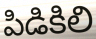
పిడికిలి